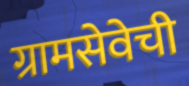
ग्रामसेवेची